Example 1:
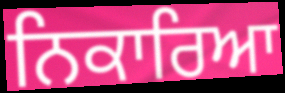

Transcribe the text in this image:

ਨਿਕਾਰਿਆ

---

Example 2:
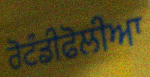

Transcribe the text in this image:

ਰੋਟੰਡੀਫੋਲੀਆ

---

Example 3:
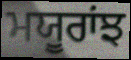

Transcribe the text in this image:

ਮਯੂਰਾਂਝ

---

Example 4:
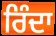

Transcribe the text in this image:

ਰਿੰਦਾ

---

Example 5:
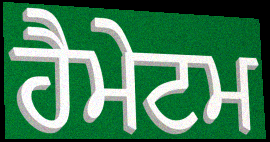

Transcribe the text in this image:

ਹੈਮੇਟਮ